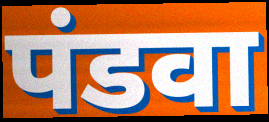
पंडवा